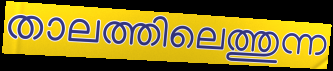
താലത്തിലെത്തുന്ന